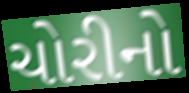
ચોરીનો